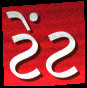
ટેંટ